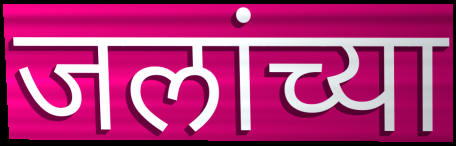
जलांच्या